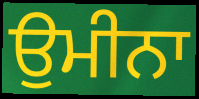
ਉਮੀਨਾ